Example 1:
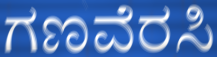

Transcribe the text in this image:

ಗಣವೆರಸಿ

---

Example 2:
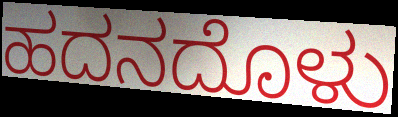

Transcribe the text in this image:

ಹದನದೊಳು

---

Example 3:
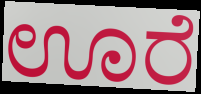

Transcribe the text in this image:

ಊರೆ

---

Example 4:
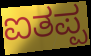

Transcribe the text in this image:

ಐತಪ್ಪ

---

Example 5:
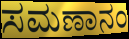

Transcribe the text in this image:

ಸಮಣಾನಂ